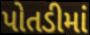
પોતડીમાં